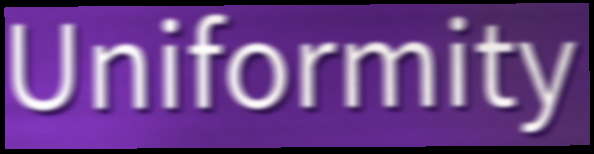
Uniformity